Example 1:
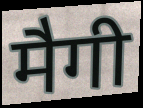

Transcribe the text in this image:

मैगी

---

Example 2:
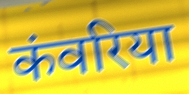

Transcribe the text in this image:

कंवरिया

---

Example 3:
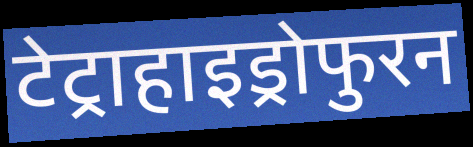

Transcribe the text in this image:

टेट्राहाइड्रोफुरन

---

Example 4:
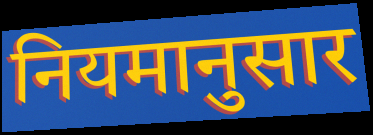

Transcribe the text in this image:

नियमानुसार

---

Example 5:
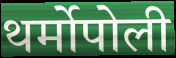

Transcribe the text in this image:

थर्मोपोली